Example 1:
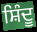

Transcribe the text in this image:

ਸ਼ਿੰਦੂ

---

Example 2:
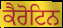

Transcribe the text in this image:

ਕੈਰੋਟਿਨ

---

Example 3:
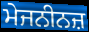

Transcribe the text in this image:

ਮੇਜਨੀਨਜ਼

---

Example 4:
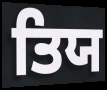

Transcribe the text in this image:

ਤਿਯ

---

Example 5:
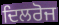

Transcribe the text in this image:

ਦਿਲਰੋਜ